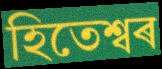
হিতেশ্বৰ